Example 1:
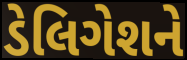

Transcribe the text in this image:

ડેલિગેશને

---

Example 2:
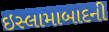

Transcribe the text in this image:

ઇસ્લામાબાદની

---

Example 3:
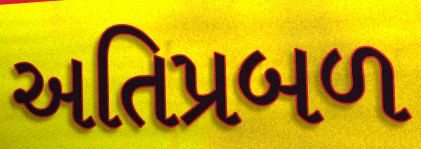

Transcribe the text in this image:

અતિપ્રબળ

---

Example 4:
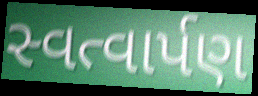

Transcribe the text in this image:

સ્વત્વાર્પણ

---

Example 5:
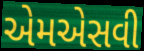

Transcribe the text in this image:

એમએસવી